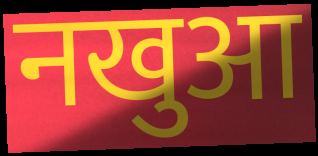
नखुआ